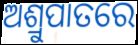
ଅଶ୍ରୁପାତରେ